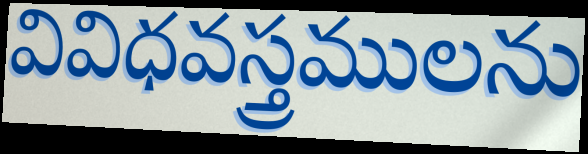
వివిధవస్త్రములను